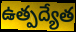
ఉత్పద్యేత